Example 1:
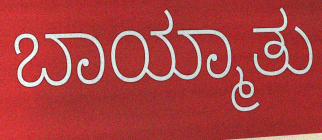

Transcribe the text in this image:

ಬಾಯ್ಮಾತು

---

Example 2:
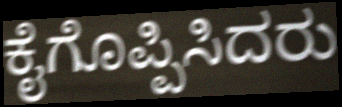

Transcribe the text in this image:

ಕೈಗೊಪ್ಪಿಸಿದರು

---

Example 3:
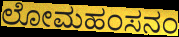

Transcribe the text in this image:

ಲೋಮಹಂಸನಂ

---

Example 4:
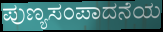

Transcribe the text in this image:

ಪುಣ್ಯಸಂಪಾದನೆಯ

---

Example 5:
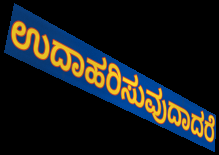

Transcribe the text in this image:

ಉದಾಹರಿಸುವುದಾದರೆ